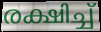
രക്ഷിച്ച്